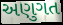
અણુગત